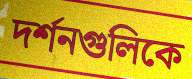
দর্শনগুলিকে